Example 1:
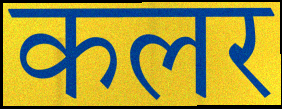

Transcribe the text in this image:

कलर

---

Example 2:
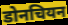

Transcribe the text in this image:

डोनचियन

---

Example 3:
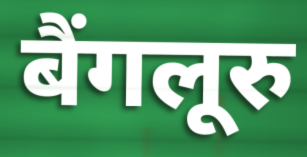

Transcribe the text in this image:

बैंगलूरु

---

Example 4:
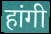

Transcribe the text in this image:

हांगी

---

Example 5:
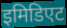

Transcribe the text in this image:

इमिडिएट